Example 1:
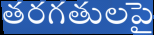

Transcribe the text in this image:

తరగతులపై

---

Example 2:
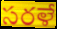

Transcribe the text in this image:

సరళే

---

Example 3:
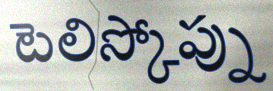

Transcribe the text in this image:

టెలిస్కోప్ను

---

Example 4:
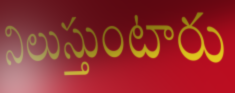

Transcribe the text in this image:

నిలుస్తుంటారు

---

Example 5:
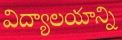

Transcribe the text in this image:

విద్యాలయాన్ని